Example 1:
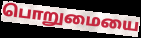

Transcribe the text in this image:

பொறுமையை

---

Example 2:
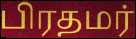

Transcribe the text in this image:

பிரதமர்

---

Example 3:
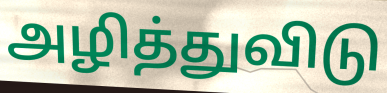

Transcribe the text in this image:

அழித்துவிடு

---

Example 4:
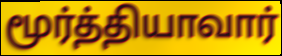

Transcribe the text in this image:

மூர்த்தியாவார்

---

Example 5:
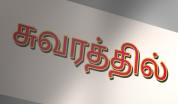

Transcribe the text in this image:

சுவரத்தில்